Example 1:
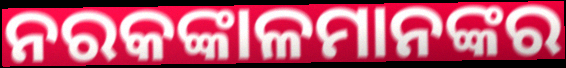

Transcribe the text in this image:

ନରକଙ୍କାଳମାନଙ୍କର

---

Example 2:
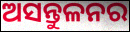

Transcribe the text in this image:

ଅସନ୍ତୁଳନର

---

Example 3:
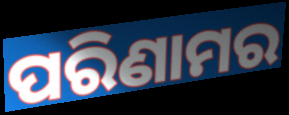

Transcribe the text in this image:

ପରିଣାମର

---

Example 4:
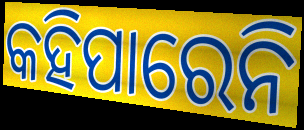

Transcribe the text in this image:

କହିପାରେନି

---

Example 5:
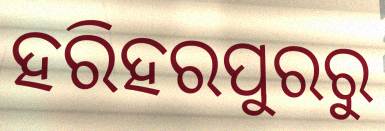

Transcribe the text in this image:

ହରିହରପୁରରୁ